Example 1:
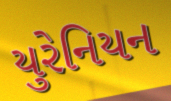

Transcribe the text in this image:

યુરેનિયન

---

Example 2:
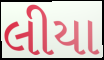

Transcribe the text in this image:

લીયા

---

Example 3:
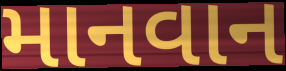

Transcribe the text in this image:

માનવાન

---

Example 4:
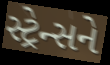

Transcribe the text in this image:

સ્ટ્રેન્સને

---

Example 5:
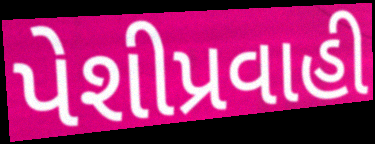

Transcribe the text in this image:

પેશીપ્રવાહી